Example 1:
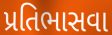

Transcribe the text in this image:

પ્રતિભાસવા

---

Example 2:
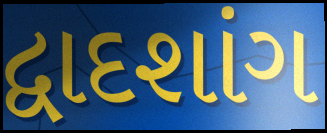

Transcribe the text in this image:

દ્વાદશાંગ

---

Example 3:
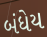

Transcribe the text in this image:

બંધેય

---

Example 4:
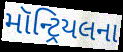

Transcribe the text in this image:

મૉન્ટ્રિયલના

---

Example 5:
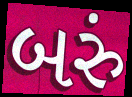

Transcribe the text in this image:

બરું